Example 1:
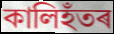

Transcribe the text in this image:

কালিহঁতৰ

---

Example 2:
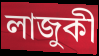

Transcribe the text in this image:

লাজুকী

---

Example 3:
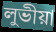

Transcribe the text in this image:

লুভীয়া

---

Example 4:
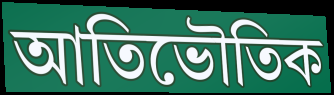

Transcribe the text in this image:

আতিভৌতিক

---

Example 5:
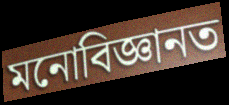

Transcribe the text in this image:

মনোবিজ্ঞানত